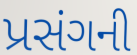
પ્રસંગની